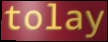
tolay